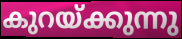
കുറയ്ക്കുന്നു